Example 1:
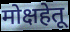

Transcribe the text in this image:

मोक्षहेतू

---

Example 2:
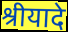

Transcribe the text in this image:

श्रीयादे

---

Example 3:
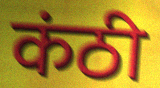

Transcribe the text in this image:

कंठी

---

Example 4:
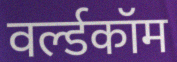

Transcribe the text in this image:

वर्ल्डकॉम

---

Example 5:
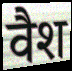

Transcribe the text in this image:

वैश